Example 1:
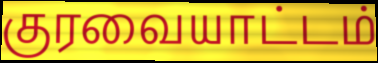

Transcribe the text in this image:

குரவையாட்டம்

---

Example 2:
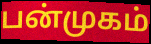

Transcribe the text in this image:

பன்முகம்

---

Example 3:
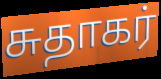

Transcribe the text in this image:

சுதாகர்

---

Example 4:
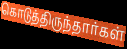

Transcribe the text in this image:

கொடுத்திருந்தார்கள்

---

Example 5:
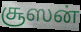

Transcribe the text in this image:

சூஸன்